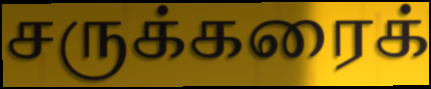
சருக்கரைக்